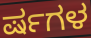
ರ್ಷಗಳ